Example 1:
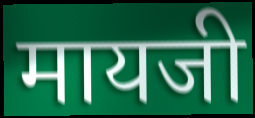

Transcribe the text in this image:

मायजी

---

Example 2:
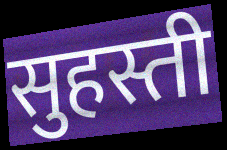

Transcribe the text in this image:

सुहस्ती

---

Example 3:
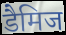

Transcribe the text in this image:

डैमिज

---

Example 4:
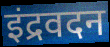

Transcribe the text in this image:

इंद्रवदन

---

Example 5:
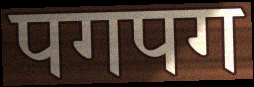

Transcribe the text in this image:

पगपग